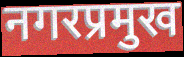
नगरप्रमुख